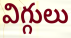
విగ్గులు